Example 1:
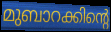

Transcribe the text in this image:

മുബാറക്കിന്റെ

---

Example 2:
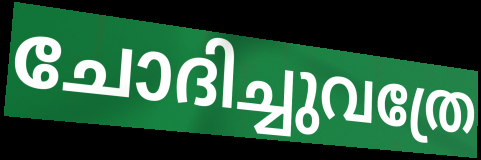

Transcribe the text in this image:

ചോദിച്ചുവത്രേ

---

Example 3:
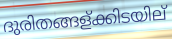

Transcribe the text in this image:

ദുരിതങ്ങള്ക്കിടയില്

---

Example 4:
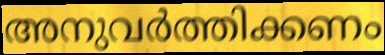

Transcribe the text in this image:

അനുവർത്തിക്കണം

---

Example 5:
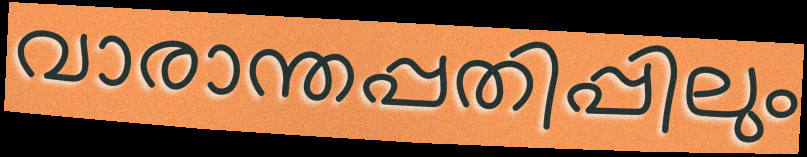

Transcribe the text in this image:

വാരാന്തപ്പതിപ്പിലും